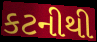
કટનીથી